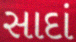
સાદાં